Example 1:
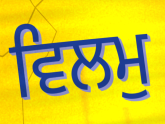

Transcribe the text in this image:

ਵਿਲਮੁ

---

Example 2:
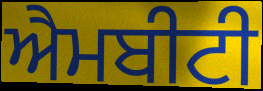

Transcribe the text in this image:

ਐਮਬੀਟੀ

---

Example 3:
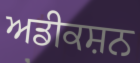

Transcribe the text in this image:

ਅਡੀਕਸ਼ਨ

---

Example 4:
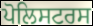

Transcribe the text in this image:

ਪੋਲਿਸਟਰਸ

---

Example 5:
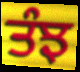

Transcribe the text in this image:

ਤੰਝ